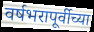
वर्षभरापूर्वीच्या